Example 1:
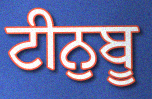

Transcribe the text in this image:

ਟੀਨੁਬੂ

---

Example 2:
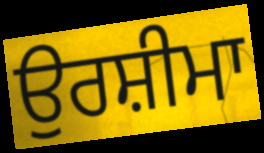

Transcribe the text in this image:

ਉਰਸ਼ੀਮਾ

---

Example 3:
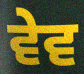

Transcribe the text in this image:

ਵੇਵ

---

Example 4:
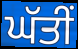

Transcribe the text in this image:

ਘੱਤੀਂ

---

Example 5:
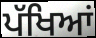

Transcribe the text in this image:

ਪੱਖਿਆਂ